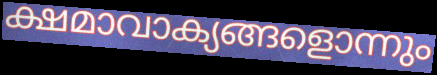
ക്ഷമാവാക്യങ്ങളൊന്നും